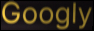
Googly